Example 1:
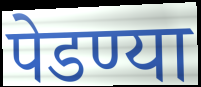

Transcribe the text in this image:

पेडण्या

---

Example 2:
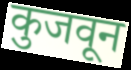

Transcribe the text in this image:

कुजवून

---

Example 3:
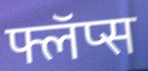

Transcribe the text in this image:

फ्लॅप्स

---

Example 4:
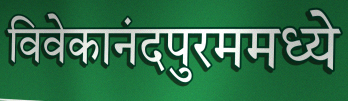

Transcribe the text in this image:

विवेकानंदपुरममध्ये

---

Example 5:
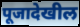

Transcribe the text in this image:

पूजादेखील